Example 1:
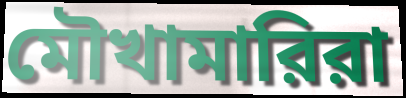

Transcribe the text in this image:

মৌখামারিরা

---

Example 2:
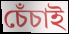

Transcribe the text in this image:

চেঁচাই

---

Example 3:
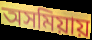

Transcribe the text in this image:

অসমিয়ায়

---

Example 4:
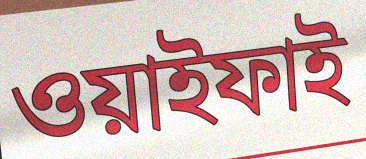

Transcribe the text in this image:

ওয়াইফাই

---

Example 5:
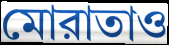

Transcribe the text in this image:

মোরাতাও